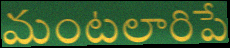
మంటలారిపే